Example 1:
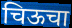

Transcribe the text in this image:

चिऊचा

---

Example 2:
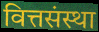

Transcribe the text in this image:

वित्तसंस्था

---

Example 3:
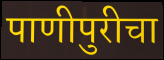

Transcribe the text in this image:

पाणीपुरीचा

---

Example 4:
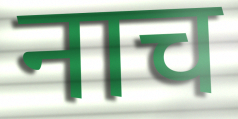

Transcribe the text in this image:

नाच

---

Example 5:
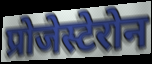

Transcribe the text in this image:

प्रोजेस्टेरोन